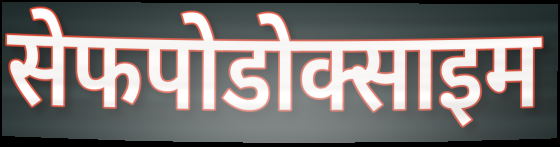
सेफपोडोक्साइम